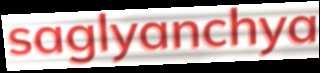
saglyanchya